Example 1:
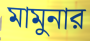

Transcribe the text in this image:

মামুনার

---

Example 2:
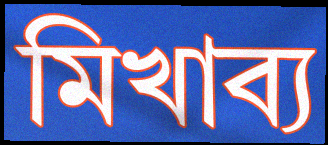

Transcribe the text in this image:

মিখাব্য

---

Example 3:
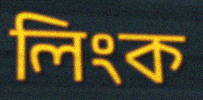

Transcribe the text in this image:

লিংক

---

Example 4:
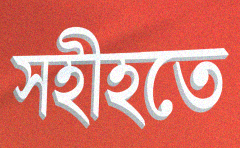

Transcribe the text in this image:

সহীহতে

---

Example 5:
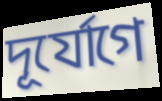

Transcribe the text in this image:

দূর্যোগে